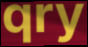
qry